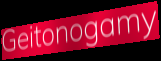
Geitonogamy